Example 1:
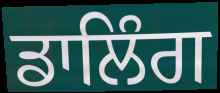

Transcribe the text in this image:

ਡਾਲਿੰਗ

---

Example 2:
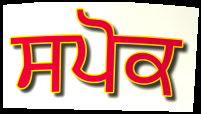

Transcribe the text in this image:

ਸਪੋਕ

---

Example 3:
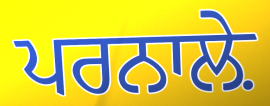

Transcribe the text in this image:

ਪਰਨਾਲ਼ੇ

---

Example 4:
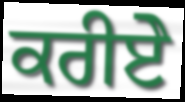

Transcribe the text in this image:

ਕਰੀਏੇ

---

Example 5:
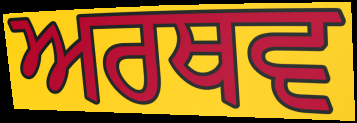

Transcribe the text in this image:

ਅਰਥਵ